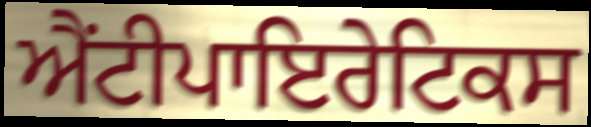
ਐਂਟੀਪਾਇਰੇਟਿਕਸ